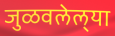
जुळवलेल्या